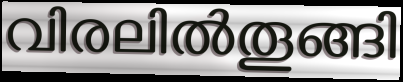
വിരലിൽതൂങ്ങി